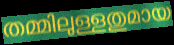
തമ്മിലുള്ളതുമായ